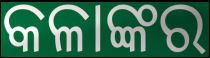
କଳାଙ୍କର